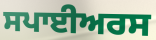
ਸਪਾਈਅਰਸ